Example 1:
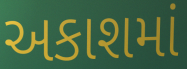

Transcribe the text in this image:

અકાશમાં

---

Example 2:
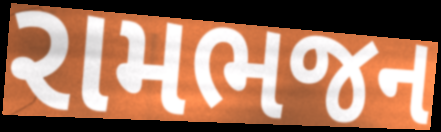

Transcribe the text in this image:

રામભજન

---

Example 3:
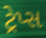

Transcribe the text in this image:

ટ્રેપ્સ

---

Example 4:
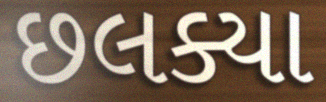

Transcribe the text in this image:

છલક્યા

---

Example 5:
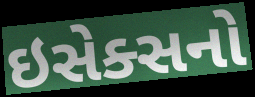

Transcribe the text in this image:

ઇસેક્સનો